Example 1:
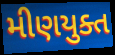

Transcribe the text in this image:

મીણયુક્ત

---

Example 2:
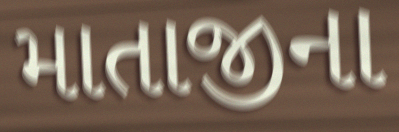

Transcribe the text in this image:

માતાજીના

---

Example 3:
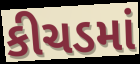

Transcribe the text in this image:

કીચડમાં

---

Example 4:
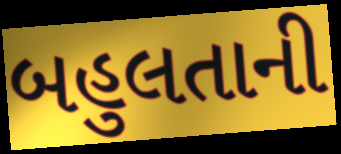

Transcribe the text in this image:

બહુલતાની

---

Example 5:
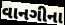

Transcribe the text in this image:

વાનગીના